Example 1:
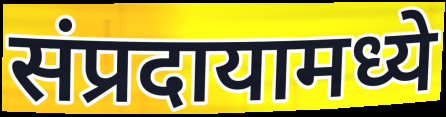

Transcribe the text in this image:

संप्रदायामध्ये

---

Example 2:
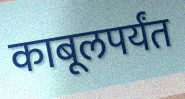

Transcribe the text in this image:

काबूलपर्यंत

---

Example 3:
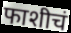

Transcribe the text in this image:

फाशीचं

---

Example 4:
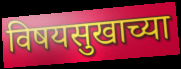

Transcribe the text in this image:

विषयसुखाच्या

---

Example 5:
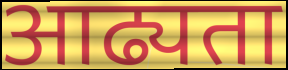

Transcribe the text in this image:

आढ्यता